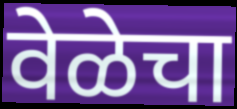
वेळेचा